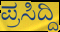
ಪ್ರಸಿದ್ದಿ